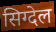
सिग्देल